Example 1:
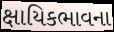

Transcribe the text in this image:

ક્ષાયિકભાવના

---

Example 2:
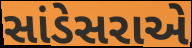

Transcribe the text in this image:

સાંડેસરાએ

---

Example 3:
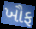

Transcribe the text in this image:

ખૌફ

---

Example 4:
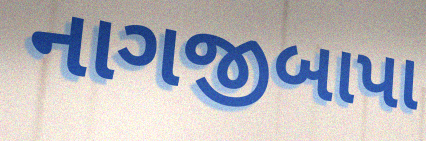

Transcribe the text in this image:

નાગજીબાપા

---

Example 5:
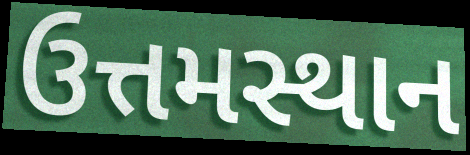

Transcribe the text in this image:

ઉત્તમસ્થાન